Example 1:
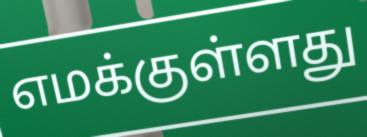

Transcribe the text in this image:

எமக்குள்ளது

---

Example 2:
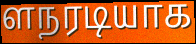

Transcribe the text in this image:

ளநரடியாக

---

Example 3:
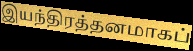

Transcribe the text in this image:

இயந்திரத்தனமாகப்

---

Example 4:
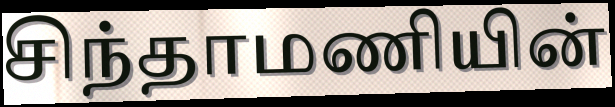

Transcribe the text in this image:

சிந்தாமணியின்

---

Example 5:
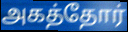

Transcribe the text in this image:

அகத்தோர்